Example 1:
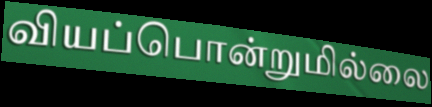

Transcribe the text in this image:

வியப்பொன்றுமில்லை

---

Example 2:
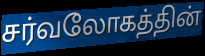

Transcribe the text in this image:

சர்வலோகத்தின்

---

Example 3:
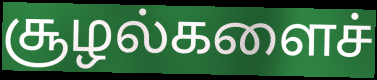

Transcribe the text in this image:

சூழல்களைச்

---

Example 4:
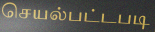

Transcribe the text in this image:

செயல்பட்டபடி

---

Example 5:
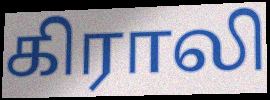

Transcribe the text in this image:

கிராலி